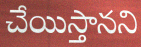
చేయిస్తానని